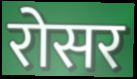
रोसर